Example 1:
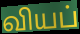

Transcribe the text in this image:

வியப்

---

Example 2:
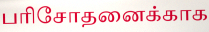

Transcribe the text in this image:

பரிசோதனைக்காக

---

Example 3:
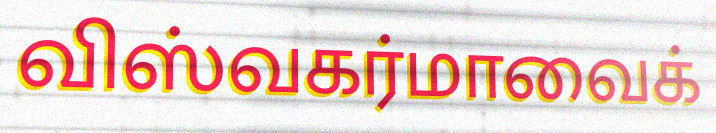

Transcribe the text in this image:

விஸ்வகர்மாவைக்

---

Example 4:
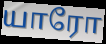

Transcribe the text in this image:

யாரோ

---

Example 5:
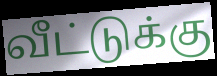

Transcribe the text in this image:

வீட்டுக்கு